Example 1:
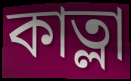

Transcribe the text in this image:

কাত্লা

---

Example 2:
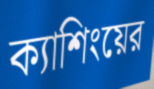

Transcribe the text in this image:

ক্যাশিংয়ের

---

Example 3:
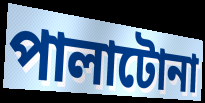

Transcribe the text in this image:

পালাটোনা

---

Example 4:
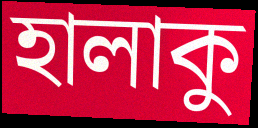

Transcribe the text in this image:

হালাকু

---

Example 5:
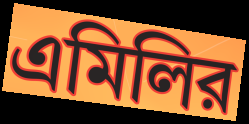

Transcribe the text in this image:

এমিলির